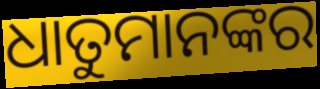
ଧାତୁମାନଙ୍କର